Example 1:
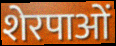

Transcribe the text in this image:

शेरपाओं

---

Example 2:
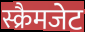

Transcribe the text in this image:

स्‍क्रैमजेट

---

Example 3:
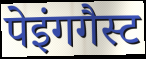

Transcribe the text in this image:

पेइंगगैस्ट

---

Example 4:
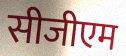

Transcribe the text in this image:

सीजीएम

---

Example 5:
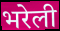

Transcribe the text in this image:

भरेली